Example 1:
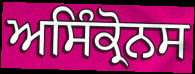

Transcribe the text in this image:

ਅਸਿੰਕ੍ਰੋਨਸ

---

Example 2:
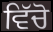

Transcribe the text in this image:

ਵਿੱਚੋ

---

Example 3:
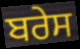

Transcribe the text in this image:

ਬਰੇਸ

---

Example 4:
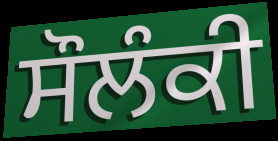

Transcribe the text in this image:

ਸੌਲੰਕੀ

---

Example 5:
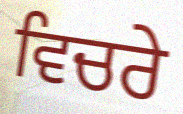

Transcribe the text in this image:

ਵਿਚਰੇ